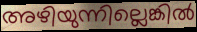
അഴിയുന്നില്ലെങ്കിൽ